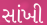
સાંખી